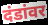
दंडांवर